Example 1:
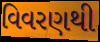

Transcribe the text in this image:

વિવરણથી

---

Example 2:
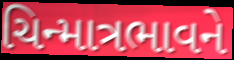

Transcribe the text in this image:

ચિન્માત્રભાવને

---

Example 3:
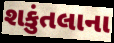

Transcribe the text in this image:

શકુંતલાના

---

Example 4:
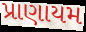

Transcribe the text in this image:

પ્રાણાયમ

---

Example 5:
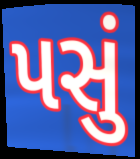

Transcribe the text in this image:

પસું